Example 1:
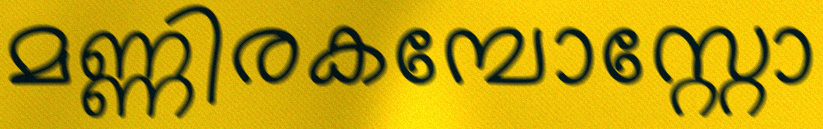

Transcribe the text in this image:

മണ്ണിരകമ്പോസ്റ്റോ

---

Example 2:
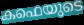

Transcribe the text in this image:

കഫെയുടെ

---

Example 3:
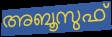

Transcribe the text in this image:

അബൂസുഫ്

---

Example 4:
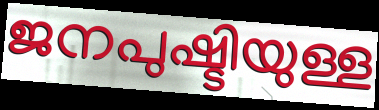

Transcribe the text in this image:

ജനപുഷ്ടിയുള്ള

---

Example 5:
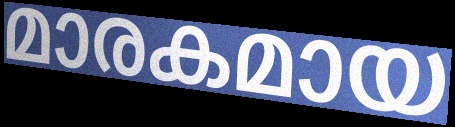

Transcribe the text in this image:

മാരകമായ